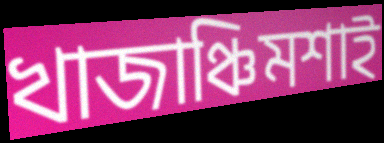
খাজাঞ্চিমশাই